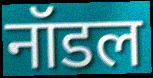
नॉडल